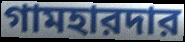
গামহারদার